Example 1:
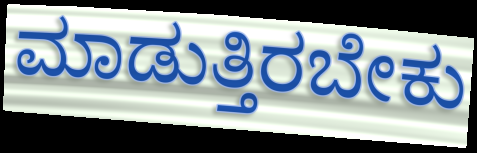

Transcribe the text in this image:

ಮಾಡುತ್ತಿರಬೇಕು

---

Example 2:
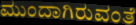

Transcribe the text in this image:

ಮುಂದಾಗಿರುವಂತೆ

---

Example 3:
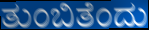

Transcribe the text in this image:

ತುಂಬಿತೆಂದು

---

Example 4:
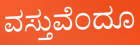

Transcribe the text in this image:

ವಸ್ತುವೆಂದೂ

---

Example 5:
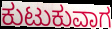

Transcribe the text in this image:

ಕುಟುಕುವಾಗ